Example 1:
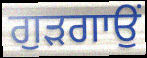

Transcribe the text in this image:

ਗੁੜਗਾਉਂ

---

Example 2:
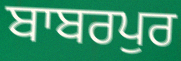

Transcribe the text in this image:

ਬਾਬਰਪੁਰ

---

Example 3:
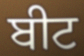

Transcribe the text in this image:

ਬੀਟ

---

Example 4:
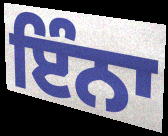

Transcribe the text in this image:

ਇੰਨਾ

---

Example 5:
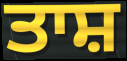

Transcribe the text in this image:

ਤਾਸ਼